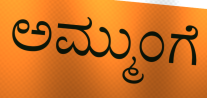
ಅಮ್ಮುಂಗೆ